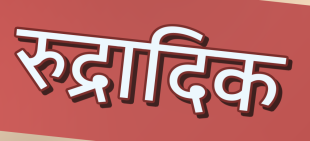
रुद्रादिक